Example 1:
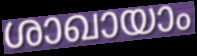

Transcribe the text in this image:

ശാഖായാം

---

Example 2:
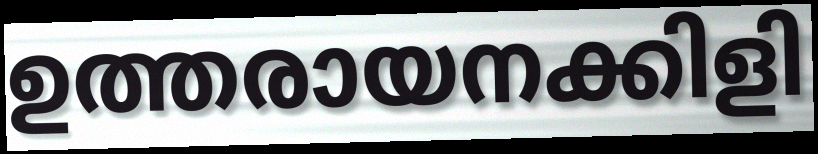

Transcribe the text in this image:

ഉത്തരായനക്കിളി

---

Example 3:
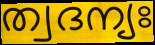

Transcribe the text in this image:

ത്വദന്യഃ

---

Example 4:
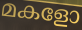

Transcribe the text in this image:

മകളോ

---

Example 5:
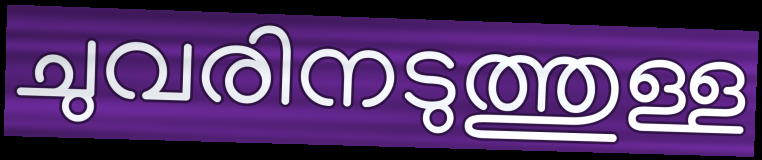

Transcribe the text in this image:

ചുവരിനടുത്തുള്ള